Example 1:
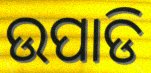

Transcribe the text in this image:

ଉପାଡି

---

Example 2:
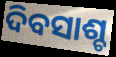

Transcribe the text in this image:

ଦିବସାଶ୍ଚ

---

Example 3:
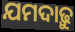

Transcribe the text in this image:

ଯମଦାଢ଼ୁ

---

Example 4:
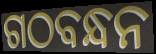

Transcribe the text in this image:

ଗଠବନ୍ଧନ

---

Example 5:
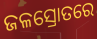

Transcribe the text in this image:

ଜଳସ୍ରୋତରେ